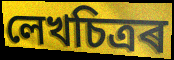
লেখচিত্ৰৰ